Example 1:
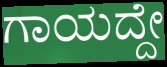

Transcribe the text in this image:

ಗಾಯದ್ದೇ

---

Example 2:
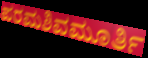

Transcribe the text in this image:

ಪರಮಶಿವಮೂರ್ತಿ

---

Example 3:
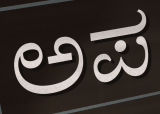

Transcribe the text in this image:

ಅಪ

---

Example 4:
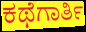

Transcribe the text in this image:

ಕಥೆಗಾರ್ತಿ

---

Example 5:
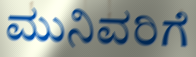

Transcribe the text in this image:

ಮುನಿವರಿಗೆ